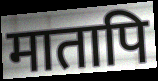
मातापि